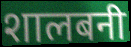
शालबनी